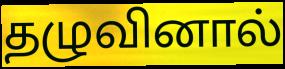
தழுவினால்